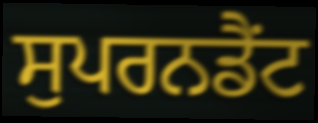
ਸੁਪਰਨਡੈਂਟ